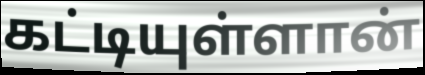
கட்டியுள்ளான்